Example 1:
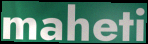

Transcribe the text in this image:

maheti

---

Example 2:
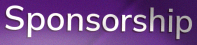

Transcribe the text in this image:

Sponsorship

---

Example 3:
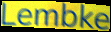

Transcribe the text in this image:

Lembke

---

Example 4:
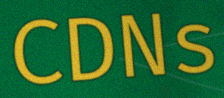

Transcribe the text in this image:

CDNs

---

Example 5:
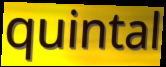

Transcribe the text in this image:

quintal